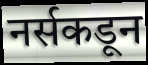
नर्सकडून